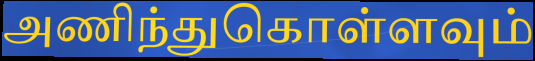
அணிந்துகொள்ளவும்